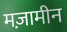
मज़ामीन